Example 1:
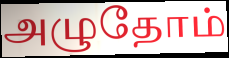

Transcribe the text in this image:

அழுதோம்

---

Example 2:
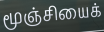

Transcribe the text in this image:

மூஞ்சியைக்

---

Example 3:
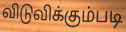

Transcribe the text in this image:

விடுவிக்கும்படி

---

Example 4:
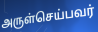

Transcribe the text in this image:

அருள்செய்பவர்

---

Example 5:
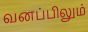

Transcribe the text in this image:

வனப்பிலும்